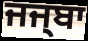
ਜਜ੍ਬਾ